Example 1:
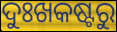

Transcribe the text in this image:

ଦୁଃଖକଷ୍ଟରୁ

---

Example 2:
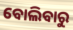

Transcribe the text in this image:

ବୋଲିବାରୁ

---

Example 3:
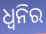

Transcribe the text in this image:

ଧ୍ବନିର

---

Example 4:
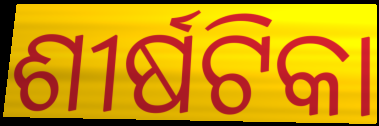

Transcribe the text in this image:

ଶୀର୍ଷଟିକା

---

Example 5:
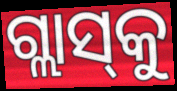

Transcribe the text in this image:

ଗ୍ଲାସ୍‌କୁ